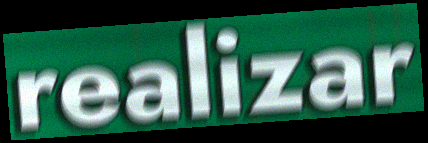
realizar